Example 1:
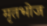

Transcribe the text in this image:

मृतभोज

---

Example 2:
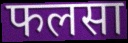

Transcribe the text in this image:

फलसा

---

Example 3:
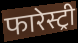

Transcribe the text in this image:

फारेस्ट्री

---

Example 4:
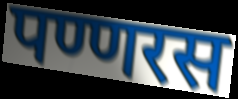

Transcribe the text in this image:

पण्णरस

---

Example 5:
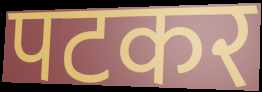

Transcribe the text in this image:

पटकर